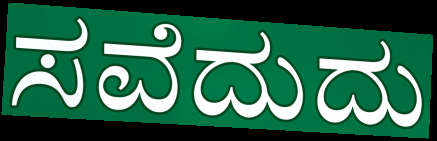
ಸವೆದುದು